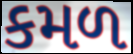
કમળ